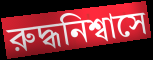
রুদ্ধনিশ্বাসে